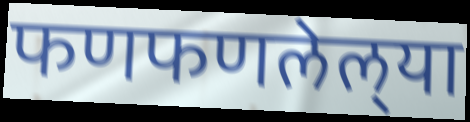
फणफणलेल्या